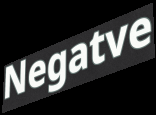
Negatve